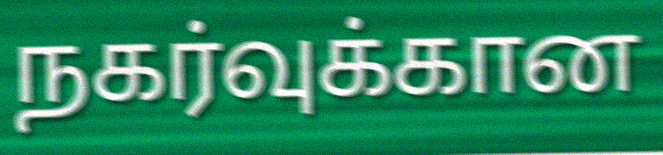
நகர்வுக்கான